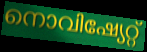
നൊവിഷ്യേറ്റ്